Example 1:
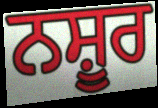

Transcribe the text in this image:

ਨਸ਼ੂਰ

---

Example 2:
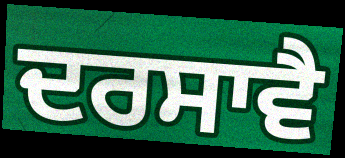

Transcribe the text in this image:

ਦਰਸਾਵੈ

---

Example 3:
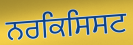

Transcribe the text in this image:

ਨਰਕਿਸਿਸਟ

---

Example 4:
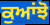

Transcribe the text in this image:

ਕੁਆਂਝੋ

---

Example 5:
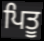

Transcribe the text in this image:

ਪਿਤੂ